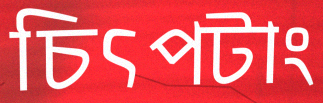
চিৎপটাং